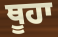
ਥੂਹਾ